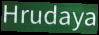
Hrudaya